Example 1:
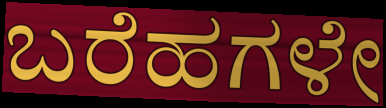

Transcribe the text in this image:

ಬರೆಹಗಳೇ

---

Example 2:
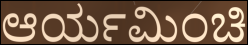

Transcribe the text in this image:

ಆರ್ಯಮಿಂಚಿ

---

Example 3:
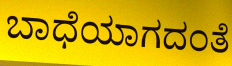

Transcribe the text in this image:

ಬಾಧೆಯಾಗದಂತೆ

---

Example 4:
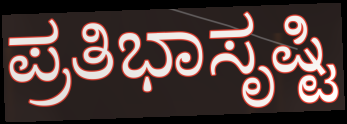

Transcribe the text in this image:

ಪ್ರತಿಭಾಸೃಷ್ಟಿ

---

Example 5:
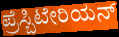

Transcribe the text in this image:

ಪ್ರೆಸ್ಬಿಟೇರಿಯನ್